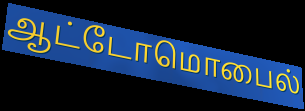
ஆட்டோமொபைல்